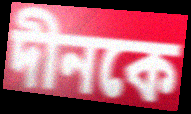
দীনকে